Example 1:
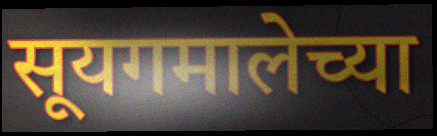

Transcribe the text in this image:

सूयगमालेच्या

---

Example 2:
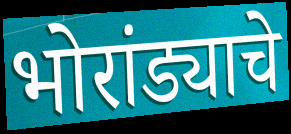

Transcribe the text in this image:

भोरांड्याचे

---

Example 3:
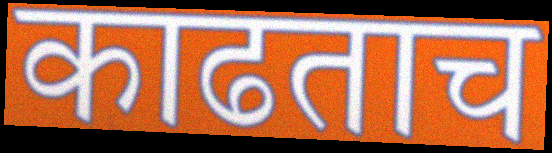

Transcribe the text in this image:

काढताच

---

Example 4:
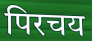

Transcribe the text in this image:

पिरचय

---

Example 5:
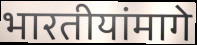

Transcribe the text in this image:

भारतीयांमागे